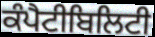
ਕੰਪੈਟੀਬਿਲਿਟੀ